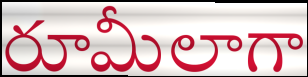
రూమీలాగా